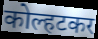
कोल्हटकर